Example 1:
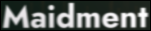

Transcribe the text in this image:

Maidment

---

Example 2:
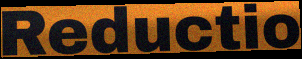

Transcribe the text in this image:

Reductio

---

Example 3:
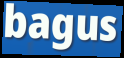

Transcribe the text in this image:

bagus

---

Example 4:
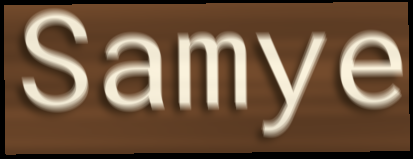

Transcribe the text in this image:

Samye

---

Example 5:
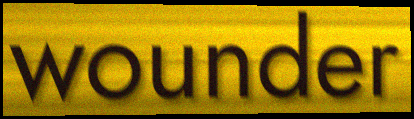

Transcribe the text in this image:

wounder